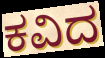
ಕವಿದ